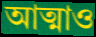
আত্মাও